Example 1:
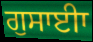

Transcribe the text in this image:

ਗੁਸਾਈਾ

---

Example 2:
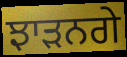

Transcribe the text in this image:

ਝਾੜਨਗੇ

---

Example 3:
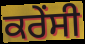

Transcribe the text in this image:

ਕਰੇੰਸੀ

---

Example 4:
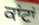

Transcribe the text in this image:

ਕਾਂਟਾਂ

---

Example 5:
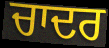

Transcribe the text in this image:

ਚਾਦਰ